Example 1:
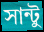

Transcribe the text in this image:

সান্টু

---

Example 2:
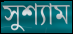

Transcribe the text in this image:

সুশ্যাম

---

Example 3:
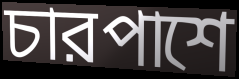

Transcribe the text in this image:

চারপাশে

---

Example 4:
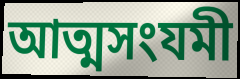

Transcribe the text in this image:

আত্মসংযমী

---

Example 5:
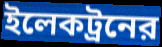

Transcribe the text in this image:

ইলেকট্রনের